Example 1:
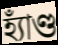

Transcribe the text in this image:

হ্যাঁণ্ড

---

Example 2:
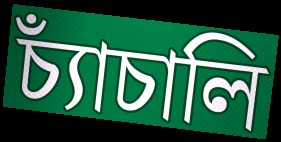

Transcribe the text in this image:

চ্যাঁচালি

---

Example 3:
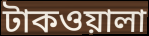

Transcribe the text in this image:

টাকওয়ালা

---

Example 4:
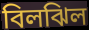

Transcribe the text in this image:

বিলঝিল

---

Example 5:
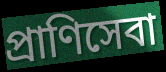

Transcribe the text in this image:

প্রাণিসেবা